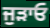
ਜੁੜਾਓ